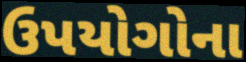
ઉપયોગોના